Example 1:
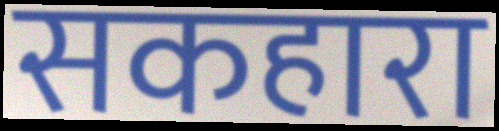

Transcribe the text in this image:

सकहारा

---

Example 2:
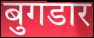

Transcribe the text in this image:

बुगडार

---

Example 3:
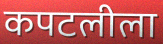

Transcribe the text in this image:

कपटलीला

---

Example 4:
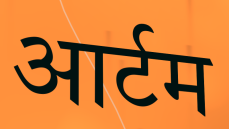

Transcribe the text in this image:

आर्टम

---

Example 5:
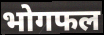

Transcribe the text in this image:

भोगफल